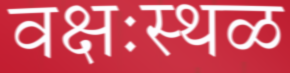
वक्षःस्थळ